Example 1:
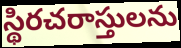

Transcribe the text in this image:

స్థిరచరాస్తులను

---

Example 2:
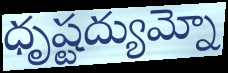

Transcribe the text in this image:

ధృష్టద్యుమ్నో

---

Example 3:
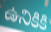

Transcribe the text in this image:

ఉనికికి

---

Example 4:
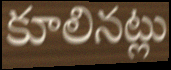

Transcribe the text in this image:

కూలినట్లు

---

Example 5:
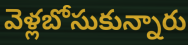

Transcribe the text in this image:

వెళ్లబోసుకున్నారు